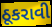
ઠૂકરાવી